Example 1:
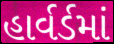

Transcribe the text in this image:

હાર્વર્ડમાં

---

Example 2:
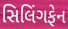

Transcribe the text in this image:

સિલિંગફેન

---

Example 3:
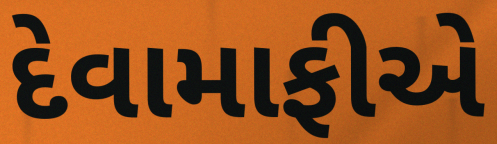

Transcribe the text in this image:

દેવામાફીએ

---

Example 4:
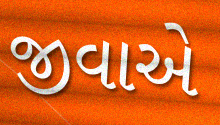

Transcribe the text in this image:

જીવાએ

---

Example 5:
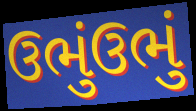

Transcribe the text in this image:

ઉભુંઉભું